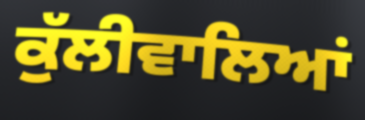
ਕੁੱਲੀਵਾਲਿਆਂ